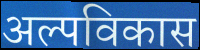
अल्पविकास